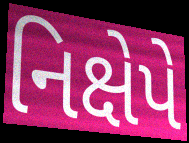
નિક્ષેપે